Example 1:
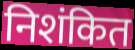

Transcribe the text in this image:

निशंकित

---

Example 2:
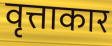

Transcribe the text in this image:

वृत्ताकार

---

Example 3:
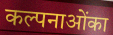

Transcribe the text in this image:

कल्पनाओंका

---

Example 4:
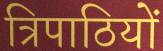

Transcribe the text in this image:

त्रिपाठियों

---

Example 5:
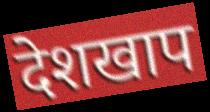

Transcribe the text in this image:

देशखाप